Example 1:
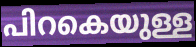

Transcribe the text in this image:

പിറകെയുള്ള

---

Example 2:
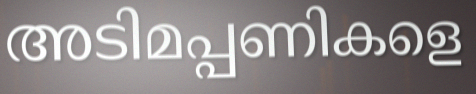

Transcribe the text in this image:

അടിമപ്പണികളെ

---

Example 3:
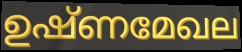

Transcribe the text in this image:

ഉഷ്ണമേഖല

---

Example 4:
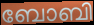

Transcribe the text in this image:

ബോബി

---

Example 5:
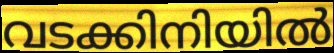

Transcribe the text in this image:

വടക്കിനിയിൽ